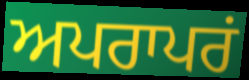
ਅਪਰਾਪਰਂ